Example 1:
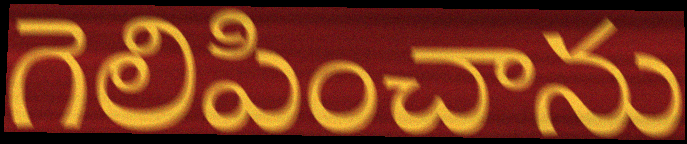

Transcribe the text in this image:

గెలిపించాను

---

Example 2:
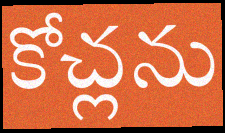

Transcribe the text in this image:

కోచ్లను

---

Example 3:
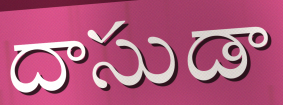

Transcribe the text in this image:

దాసుడా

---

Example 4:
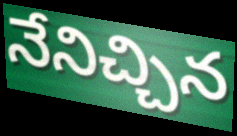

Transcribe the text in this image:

నేనిచ్చిన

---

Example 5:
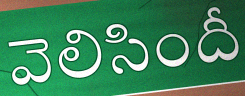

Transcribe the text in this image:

వెలిసిందీ